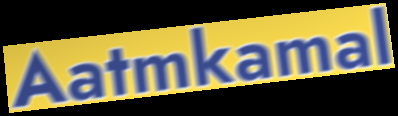
Aatmkamal